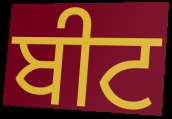
ਬੀਟ